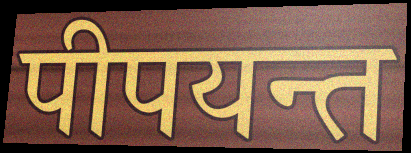
पीपयन्त